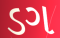
ડગ